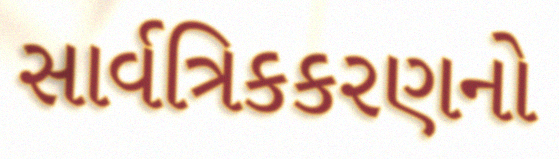
સાર્વત્રિકકરણનો